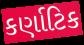
કર્ણાટિક